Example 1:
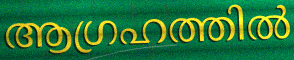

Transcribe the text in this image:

ആഗ്രഹത്തിൽ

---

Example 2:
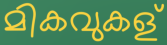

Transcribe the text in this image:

മികവുകള്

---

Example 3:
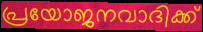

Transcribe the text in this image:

പ്രയോജനവാദിക്ക്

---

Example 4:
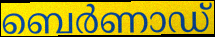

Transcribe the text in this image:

ബെർണാഡ്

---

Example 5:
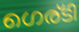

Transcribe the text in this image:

ഗെര്ടി